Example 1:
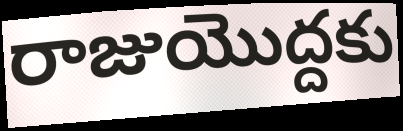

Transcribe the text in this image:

రాజుయొద్దకు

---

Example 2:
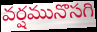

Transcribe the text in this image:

వర్షమునొసగి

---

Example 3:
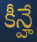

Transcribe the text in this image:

కీన్హే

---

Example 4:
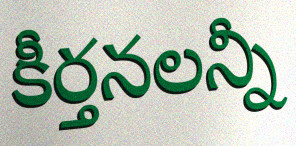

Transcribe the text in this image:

కీర్తనలన్నీ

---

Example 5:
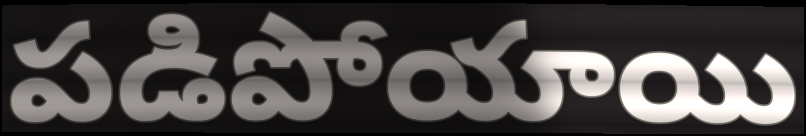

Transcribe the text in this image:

పడిపోయాయి